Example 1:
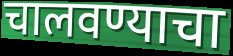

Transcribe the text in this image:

चालवण्याचा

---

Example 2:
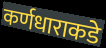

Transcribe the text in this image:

कर्णधाराकडे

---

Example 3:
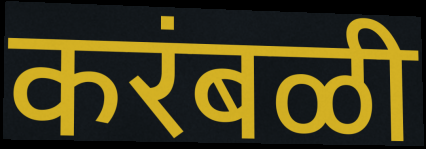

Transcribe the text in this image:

करंबळी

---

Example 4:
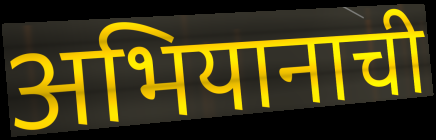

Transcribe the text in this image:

अभियानाची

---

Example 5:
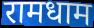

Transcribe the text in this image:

रामधाम